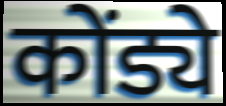
कोंड्ये